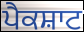
ਪੈਕਸ਼ਾਟ